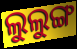
ଲୁଲୁଙ୍ଗ